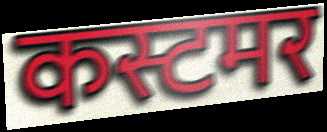
कस्‍टमर